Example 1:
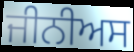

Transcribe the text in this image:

ਜੀਨੀਅਸ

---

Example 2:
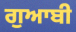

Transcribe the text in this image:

ਗੁਆਬੀ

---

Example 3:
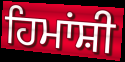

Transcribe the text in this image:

ਹਿਮਾਂਸ਼ੀ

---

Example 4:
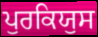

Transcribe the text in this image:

ਪੁਰਕਿਯੁਸ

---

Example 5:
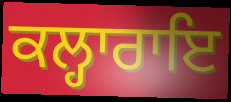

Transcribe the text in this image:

ਕਲ੍ਹਾਰਾਇ